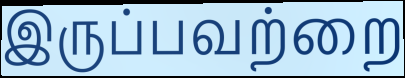
இருப்பவற்றை